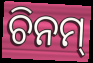
ଚିନମ୍